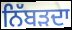
ਨਿੱਬੜਦਾ